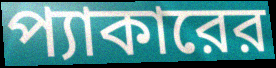
প্যাকারের